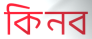
কিনব